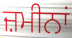
ਜ਼ਮੀਨਾਂ